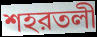
শহরতলী